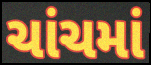
ચાંચમાં